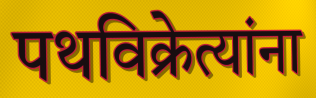
पथविक्रेत्यांना